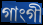
গাংগী